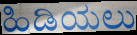
ಹಿಡಿಯಲು